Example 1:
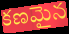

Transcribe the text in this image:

కణమైన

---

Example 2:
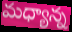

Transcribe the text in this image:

మధ్యాన్న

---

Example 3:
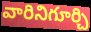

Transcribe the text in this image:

వారినిగూర్చి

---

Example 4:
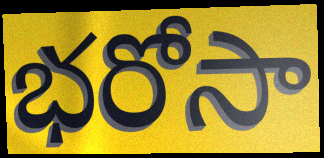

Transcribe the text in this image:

భరోసా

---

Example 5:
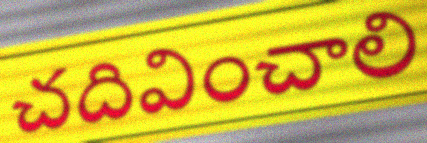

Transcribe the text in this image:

చదివించాలి